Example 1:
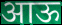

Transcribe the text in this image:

आऊ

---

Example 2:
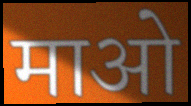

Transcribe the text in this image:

माओ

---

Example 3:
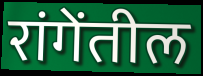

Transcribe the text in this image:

रांगेंतील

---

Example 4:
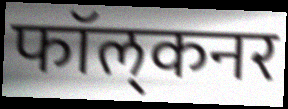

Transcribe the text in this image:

फॉल्कनर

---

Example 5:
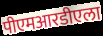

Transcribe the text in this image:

पीएमआरडीएला